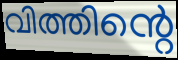
വിത്തിന്റെ